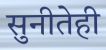
सुनीतेही